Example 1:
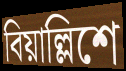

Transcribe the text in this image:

বিয়াল্লিশে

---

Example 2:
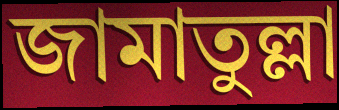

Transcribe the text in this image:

জামাতুল্লা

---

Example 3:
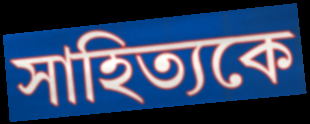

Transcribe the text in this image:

সাহিত্যকে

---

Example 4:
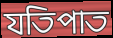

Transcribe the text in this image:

যতিপাত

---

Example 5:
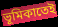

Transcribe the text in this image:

ভূমিকাতেই